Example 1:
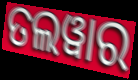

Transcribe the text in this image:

ତଲୱାର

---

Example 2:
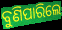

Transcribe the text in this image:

ବୁଣିପାରିଲେ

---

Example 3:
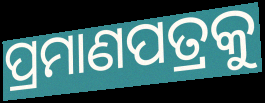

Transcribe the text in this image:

ପ୍ରମାଣପତ୍ରକୁ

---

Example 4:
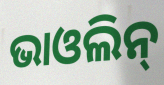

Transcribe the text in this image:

ଭାଓଲିନ୍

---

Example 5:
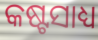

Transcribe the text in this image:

କଷ୍ଟସାଧ୍ଯ